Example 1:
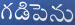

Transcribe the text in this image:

గడిపెను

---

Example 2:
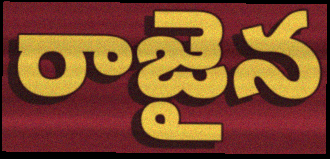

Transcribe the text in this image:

రాజైన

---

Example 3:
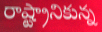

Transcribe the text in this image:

రాష్ట్రానికున్న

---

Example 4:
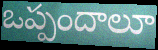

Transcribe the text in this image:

ఒప్పందాలూ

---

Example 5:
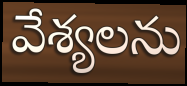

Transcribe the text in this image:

వేశ్యలను